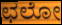
ಛಲೋ